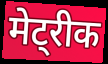
मेट्रीक